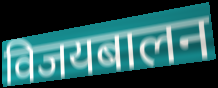
विजयबालन